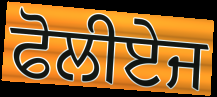
ਫੋਲੀਏਜ